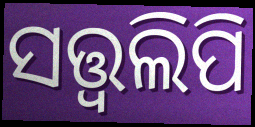
ସତ୍ତ୍ୱଲିପି